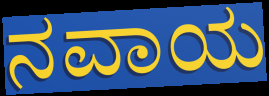
ನವಾಯ